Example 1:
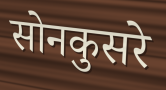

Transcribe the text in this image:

सोनकुसरे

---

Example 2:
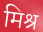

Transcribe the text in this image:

मिश्र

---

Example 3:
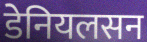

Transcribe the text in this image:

डेनियलसन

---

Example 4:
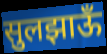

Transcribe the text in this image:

सुलझाऊँ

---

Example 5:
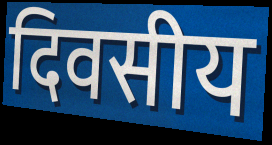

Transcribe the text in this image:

दिवसीय